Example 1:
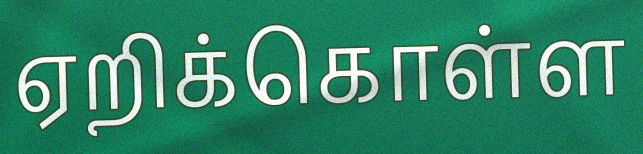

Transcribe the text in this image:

ஏறிக்கொள்ள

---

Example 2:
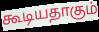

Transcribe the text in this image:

கூடியதாகும்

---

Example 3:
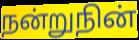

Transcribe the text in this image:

நன்றுநின்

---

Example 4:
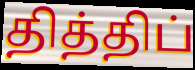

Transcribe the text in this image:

தித்திப்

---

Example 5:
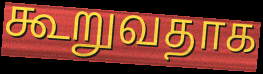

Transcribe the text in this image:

கூறுவதாக